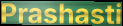
Prashasti